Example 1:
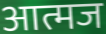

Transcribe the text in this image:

आत्मज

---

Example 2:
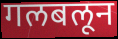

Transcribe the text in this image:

गलबलून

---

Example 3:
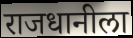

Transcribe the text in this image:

राजधानीला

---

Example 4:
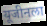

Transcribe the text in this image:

यूजीनला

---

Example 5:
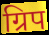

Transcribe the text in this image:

ग्रिप